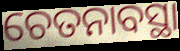
ଚେତନାବସ୍ଥା